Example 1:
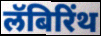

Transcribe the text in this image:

लॅबिरिंथ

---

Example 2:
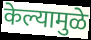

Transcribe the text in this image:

केल्यामुळे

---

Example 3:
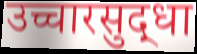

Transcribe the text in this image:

उच्चारसुद्धा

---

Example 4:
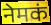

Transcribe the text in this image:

नेमकं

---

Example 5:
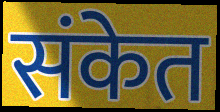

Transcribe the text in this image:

संकेत